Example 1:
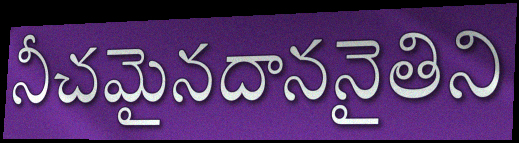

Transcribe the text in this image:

నీచమైనదాననైతిని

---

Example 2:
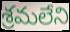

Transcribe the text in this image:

శ్రమలేని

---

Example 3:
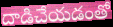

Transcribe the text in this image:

దాడిచేయడంతో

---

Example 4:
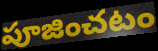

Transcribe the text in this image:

పూజించటం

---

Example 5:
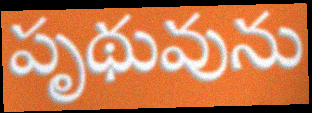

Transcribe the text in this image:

పృథువును